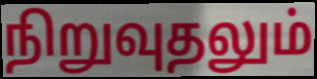
நிறுவுதலும்